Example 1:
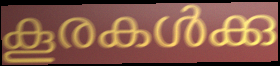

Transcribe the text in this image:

കൂരകൾക്കു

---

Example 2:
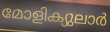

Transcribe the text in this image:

മോളിക്യുലാർ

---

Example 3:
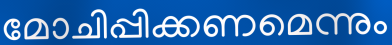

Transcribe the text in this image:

മോചിപ്പിക്കണമെന്നും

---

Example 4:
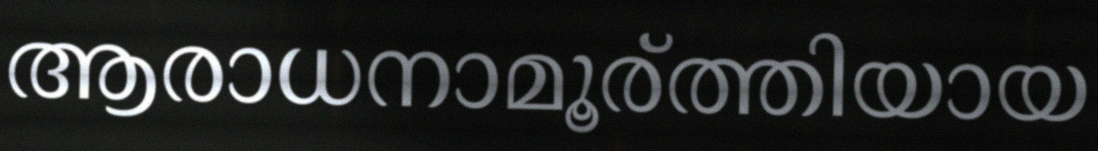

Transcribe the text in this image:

ആരാധനാമൂര്ത്തിയായ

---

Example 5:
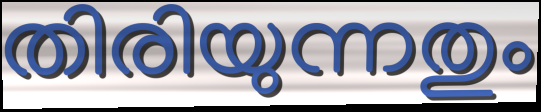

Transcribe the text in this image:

തിരിയുന്നതും